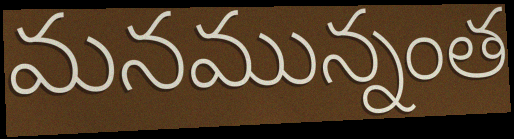
మనమున్నంత